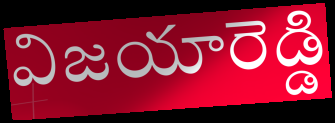
విజయారెడ్డి